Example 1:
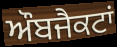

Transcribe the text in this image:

ਔਬਜੈਕਟਾਂ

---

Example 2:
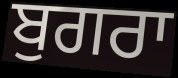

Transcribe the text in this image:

ਬੁਗਰਾ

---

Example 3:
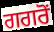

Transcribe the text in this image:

ਗਗਰੋਂ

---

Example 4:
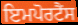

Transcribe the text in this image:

ਇਮਪੋਰਟੈਂਸ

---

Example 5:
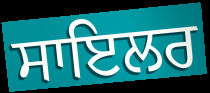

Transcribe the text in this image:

ਸਾਇਲਰ